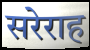
सरेराह